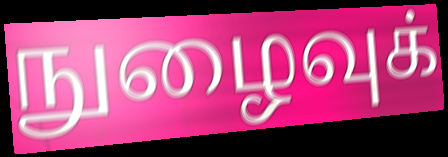
நுழைவுக்